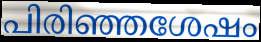
പിരിഞ്ഞശേഷം